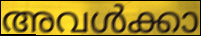
അവൾക്കാ